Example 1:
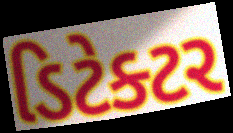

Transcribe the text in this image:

ડિટેક્ટર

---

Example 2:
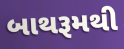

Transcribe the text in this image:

બાથરૂમથી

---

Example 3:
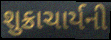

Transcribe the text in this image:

શુક્રાચાર્યની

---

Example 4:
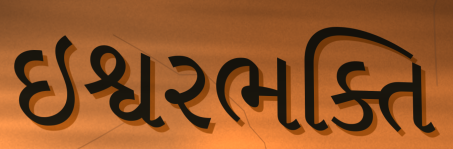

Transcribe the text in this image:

ઇશ્વરભક્તિ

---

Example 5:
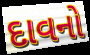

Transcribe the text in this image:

દાવનો